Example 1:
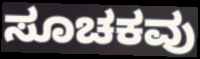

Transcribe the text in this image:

ಸೂಚಕವು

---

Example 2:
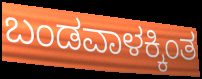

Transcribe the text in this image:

ಬಂಡವಾಳಕ್ಕಿಂತ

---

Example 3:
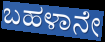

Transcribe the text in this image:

ಬಹಳಾನೇ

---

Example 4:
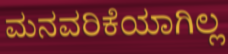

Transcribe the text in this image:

ಮನವರಿಕೆಯಾಗಿಲ್ಲ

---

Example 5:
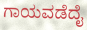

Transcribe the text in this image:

ಗಾಯವಡೆದೈ